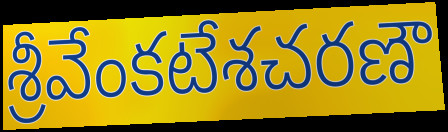
శ్రీవేంకటేశచరణౌ